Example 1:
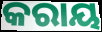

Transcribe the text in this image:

କରାୟ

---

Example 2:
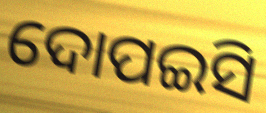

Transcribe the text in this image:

ଦୋପଇସି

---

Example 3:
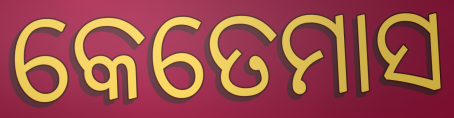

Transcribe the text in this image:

କେତେମାସ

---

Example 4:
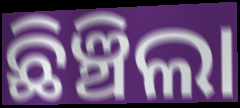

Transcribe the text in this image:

ଛିଞ୍ଚିଲା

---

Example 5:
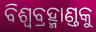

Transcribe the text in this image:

ବିଶ୍ବବ୍ରହ୍ମାଣ୍ଡକୁ